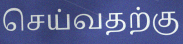
செய்வதற்கு